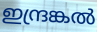
ഇന്ദ്രങ്കൽ